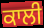
ਕਾਲੀ